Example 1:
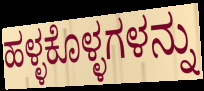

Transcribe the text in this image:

ಹಳ್ಳಕೊಳ್ಳಗಳನ್ನು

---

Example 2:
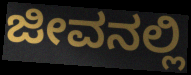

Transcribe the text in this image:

ಜೀವನಲ್ಲಿ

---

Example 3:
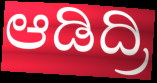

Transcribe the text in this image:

ಆಡಿದ್ರಿ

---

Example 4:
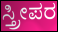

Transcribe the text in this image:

ಸ್ತ್ರೀಪರ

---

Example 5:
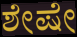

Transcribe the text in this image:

ಶೇಷೇ